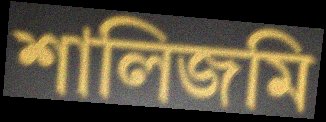
শালিজমি